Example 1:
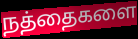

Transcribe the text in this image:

நத்தைகளை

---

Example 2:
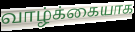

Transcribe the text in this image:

வாழ்க்கையாக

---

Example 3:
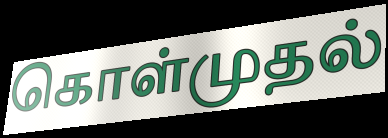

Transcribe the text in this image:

கொள்முதல்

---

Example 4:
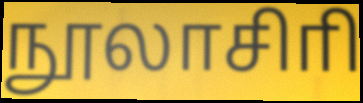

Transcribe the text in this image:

நூலாசிரி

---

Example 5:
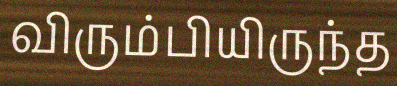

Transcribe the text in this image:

விரும்பியிருந்த